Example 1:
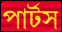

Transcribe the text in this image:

পার্টস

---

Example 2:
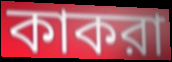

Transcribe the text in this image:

কাকরা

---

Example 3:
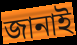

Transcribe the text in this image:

জানাই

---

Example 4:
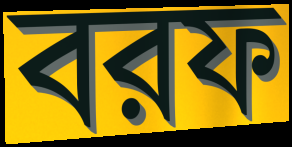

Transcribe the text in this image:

বরফ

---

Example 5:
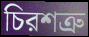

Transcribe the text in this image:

চিরশত্রু